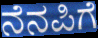
ನೆನಪಿಗೆ